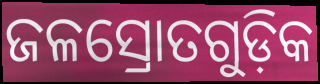
ଜଳସ୍ରୋତଗୁଡ଼ିକ